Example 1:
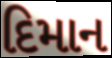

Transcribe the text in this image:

દિમાન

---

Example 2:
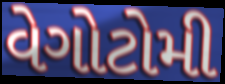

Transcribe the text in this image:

વેગોટોમી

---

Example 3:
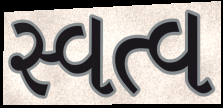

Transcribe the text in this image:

સ્વત્વ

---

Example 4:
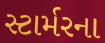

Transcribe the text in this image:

સ્ટાર્મરના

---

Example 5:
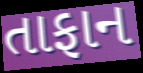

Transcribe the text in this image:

તાફાન